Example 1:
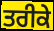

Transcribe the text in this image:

ਤਰੀਕੇ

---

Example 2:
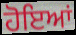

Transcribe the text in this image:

ਹੋਇਆਂ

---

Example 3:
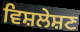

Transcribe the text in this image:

ਵਿਸ਼ਲੇਸ਼ਣ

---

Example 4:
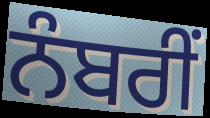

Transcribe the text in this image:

ਨੰਬਰੀਂ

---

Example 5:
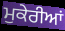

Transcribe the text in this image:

ਮੁਕੇਰੀਆਂ